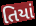
તિયાં